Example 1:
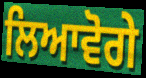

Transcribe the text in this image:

ਲਿਆਵੋਗੇ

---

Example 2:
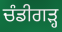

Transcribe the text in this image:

ਚੰਡੀਗੜ੍ਹ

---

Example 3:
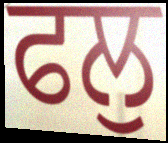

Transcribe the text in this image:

ਫਲੁ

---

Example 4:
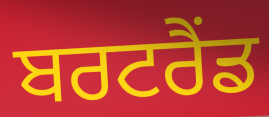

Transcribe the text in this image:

ਬਰਟਰੈਂਡ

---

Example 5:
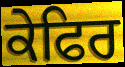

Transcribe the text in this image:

ਕੇਫਿਰ